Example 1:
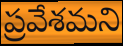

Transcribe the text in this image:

ప్రవేశమని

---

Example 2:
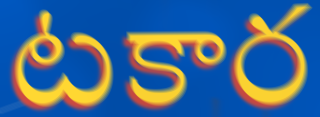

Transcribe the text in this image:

టకార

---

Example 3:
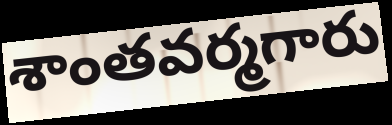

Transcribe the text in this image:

శాంతవర్మగారు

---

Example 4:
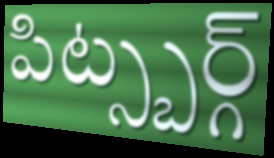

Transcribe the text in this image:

పిట్స్బర్గ్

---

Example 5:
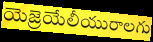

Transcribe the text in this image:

యెజ్రెయేలీయురాలగు